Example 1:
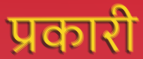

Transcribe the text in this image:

प्रकारी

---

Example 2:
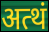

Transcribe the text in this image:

अत्थं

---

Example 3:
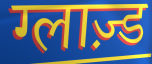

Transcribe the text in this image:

ग्लाज़्ड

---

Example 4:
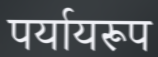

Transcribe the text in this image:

पर्यायरूप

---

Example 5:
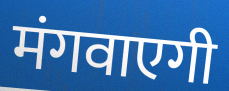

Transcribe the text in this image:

मंगवाएगी